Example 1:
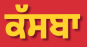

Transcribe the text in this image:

ਕੱਸਬਾ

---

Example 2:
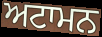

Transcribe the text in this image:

ਅਟਾਮਨ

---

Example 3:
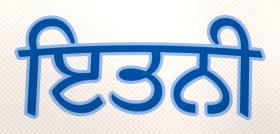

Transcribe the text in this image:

ਇਤਨੀ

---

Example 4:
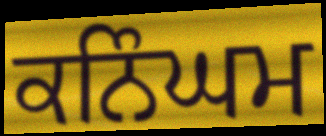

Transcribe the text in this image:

ਕਨਿੰਘਮ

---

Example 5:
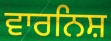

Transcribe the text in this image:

ਵਾਰਨਿਸ਼